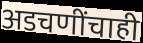
अडचणींचाही